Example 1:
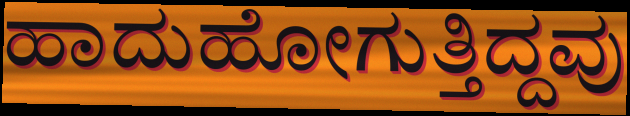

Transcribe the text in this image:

ಹಾದುಹೋಗುತ್ತಿದ್ದವು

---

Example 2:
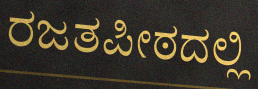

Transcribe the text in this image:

ರಜತಪೀಠದಲ್ಲಿ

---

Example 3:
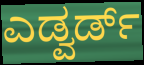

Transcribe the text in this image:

ಎಡ್ವರ್ಡ್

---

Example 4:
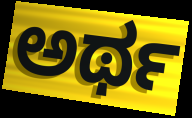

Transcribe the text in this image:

ಅರ್ಥ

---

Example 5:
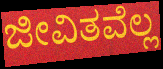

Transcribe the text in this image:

ಜೀವಿತವೆಲ್ಲ